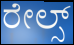
ರೇಲ್ಸ್